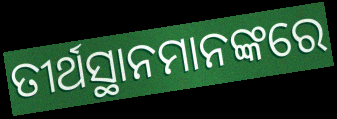
ତୀର୍ଥସ୍ଥାନମାନଙ୍କରେ